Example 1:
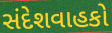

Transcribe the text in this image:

સંદેશવાહકો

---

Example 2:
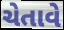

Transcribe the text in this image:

ચેતાવે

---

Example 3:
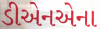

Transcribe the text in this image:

ડીએનએના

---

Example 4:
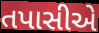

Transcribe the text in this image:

તપાસીએ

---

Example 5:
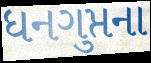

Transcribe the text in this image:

ધનગુપ્તના